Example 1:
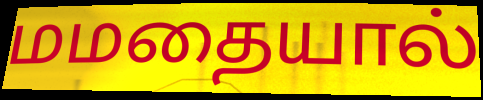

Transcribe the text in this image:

மமதையால்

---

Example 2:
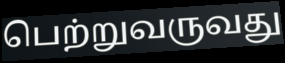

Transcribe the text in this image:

பெற்றுவருவது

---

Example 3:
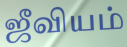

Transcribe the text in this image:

ஜீவியம்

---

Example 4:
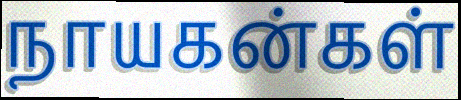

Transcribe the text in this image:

நாயகன்கள்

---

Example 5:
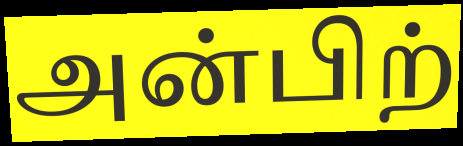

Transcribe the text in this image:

அன்பிற்